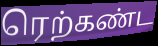
ரெற்கண்ட